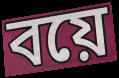
বয়ে